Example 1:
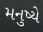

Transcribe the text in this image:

મનુષ્યે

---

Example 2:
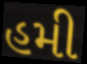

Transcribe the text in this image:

હમી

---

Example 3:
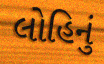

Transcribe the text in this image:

લોહિનું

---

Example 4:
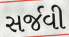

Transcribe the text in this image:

સર્જવી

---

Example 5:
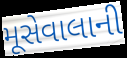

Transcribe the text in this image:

મૂસેવાલાની